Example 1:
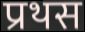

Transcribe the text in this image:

प्रथस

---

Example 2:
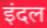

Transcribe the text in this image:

इंदल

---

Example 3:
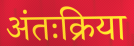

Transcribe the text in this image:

अंतःक्रिया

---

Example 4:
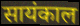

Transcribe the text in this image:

सायंकाल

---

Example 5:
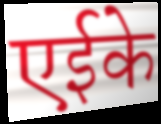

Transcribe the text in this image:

एईके